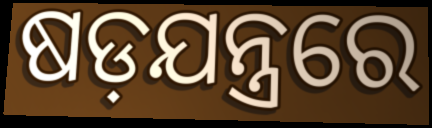
ଷଡ଼ଯନ୍ତ୍ରରେ